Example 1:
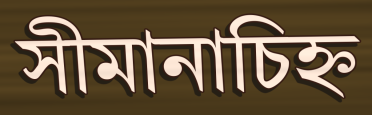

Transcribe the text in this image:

সীমানাচিহ্ন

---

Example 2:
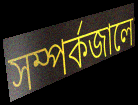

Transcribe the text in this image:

সম্পর্কজালে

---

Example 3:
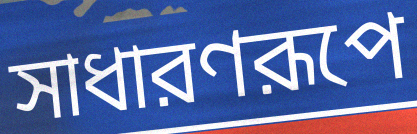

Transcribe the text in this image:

সাধারণরূপে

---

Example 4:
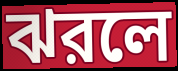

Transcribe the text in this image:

ঝরলে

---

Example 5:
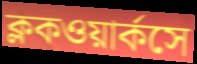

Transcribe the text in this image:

ক্লকওয়ার্কসে